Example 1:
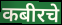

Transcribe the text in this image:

कबीरचे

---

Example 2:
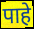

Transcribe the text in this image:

पाहे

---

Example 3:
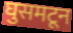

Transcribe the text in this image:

घुसमटून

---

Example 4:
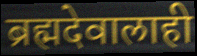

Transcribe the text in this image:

ब्रह्मदेवालाही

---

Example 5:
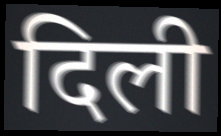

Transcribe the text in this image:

दिली